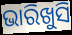
ଭାରିଖୁସି